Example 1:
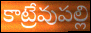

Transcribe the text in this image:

కాట్రేవుపల్లి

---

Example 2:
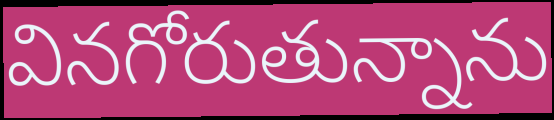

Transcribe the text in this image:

వినగోరుతున్నాను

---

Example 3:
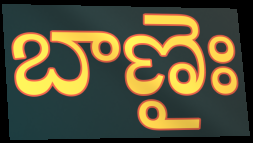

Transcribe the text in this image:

బాణైః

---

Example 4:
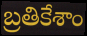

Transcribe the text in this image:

బ్రతికేశాం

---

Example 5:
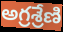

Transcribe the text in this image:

అగ్రశ్రేణి